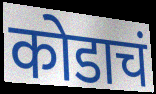
कोडाचं